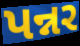
પન્નર